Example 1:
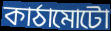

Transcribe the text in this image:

কাঠামোটো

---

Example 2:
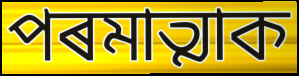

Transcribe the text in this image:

পৰমাত্মাক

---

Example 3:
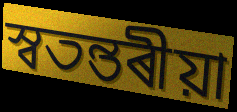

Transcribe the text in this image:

স্বতন্তৰীয়া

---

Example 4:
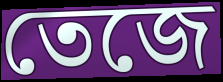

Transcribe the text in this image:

তেজে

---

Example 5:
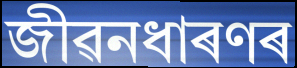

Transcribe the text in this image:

জীৱনধাৰণৰ